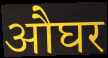
औघर